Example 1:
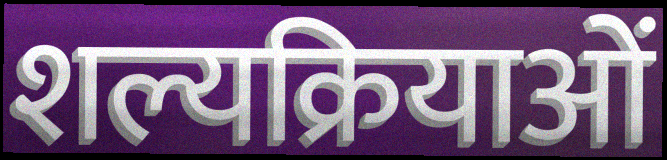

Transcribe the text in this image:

शल्यक्रियाओं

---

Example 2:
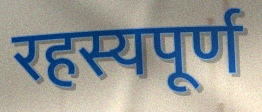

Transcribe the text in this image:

रहस्यपूर्ण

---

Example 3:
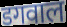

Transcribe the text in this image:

डगवाल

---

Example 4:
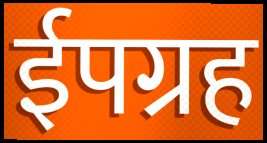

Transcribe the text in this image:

ईपग्रह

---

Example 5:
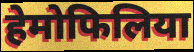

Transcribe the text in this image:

हेमोफिलिया